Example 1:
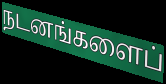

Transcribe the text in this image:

நடனங்களைப்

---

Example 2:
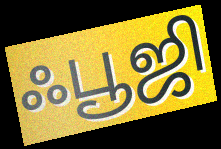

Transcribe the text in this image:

ஃபூஜி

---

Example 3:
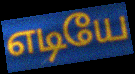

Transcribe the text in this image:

எடியே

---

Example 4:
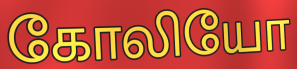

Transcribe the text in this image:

கோலியோ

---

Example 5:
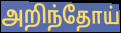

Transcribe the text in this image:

அறிந்தோய்